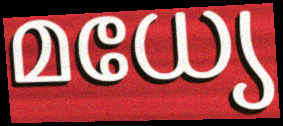
മധ്യേ